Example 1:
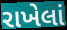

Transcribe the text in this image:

રાખેલાં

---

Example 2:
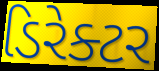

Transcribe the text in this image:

ડિરેક્ટર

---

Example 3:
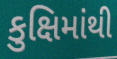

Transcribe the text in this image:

કુક્ષિમાંથી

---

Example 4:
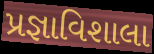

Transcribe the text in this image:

પ્રજ્ઞાવિશાલા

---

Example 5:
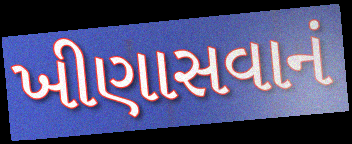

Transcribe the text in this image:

ખીણાસવાનં